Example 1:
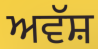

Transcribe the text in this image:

ਅਵੱਸ਼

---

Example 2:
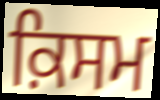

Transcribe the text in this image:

ਕ਼ਿਸਮ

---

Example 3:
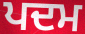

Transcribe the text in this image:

ਪਦਮ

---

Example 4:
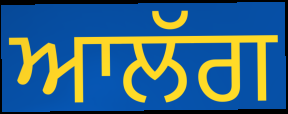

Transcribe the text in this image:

ਆਲੱਗ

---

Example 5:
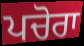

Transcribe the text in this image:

ਪਚੋਰਾ